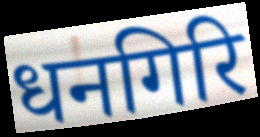
धनगिरि